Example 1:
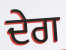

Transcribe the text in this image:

ਦੇਗ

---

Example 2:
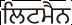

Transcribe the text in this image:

ਲਿਟਮੈਨ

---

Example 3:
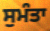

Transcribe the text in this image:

ਸੁਮੰਤਾ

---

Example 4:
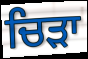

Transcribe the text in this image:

ਚਿੜਾ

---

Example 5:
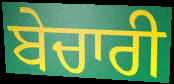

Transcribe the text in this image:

ਬੇਚਾਰੀ